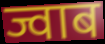
ज्वाब